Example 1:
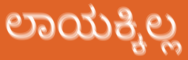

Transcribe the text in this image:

ಲಾಯಕ್ಕಿಲ್ಲ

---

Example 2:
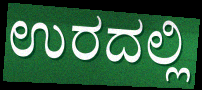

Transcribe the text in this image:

ಉರದಲ್ಲಿ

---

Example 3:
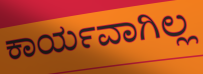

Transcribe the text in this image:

ಕಾರ್ಯವಾಗಿಲ್ಲ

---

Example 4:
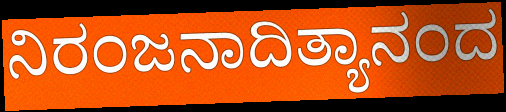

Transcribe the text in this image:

ನಿರಂಜನಾದಿತ್ಯಾನಂದ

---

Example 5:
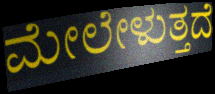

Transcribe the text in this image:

ಮೇಲೇಳುತ್ತದೆ